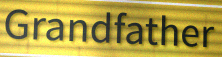
Grandfather